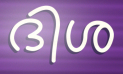
ദിശ